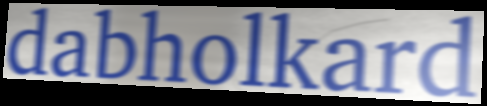
dabholkard